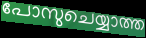
പോസുചെയ്യാത്ത